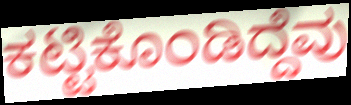
ಕಟ್ಟಿಕೊಂಡಿದ್ದೆವು